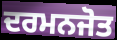
ਦਰਮਨਜੋਤ